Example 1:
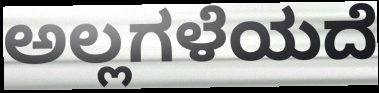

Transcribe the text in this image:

ಅಲ್ಲಗಳೆಯದೆ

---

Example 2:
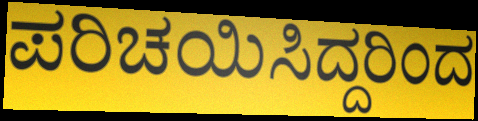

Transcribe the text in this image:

ಪರಿಚಯಿಸಿದ್ದರಿಂದ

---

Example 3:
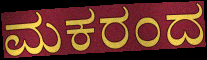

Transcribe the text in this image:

ಮಕರಂದ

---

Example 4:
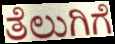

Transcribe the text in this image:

ತೆಲುಗಿಗೆ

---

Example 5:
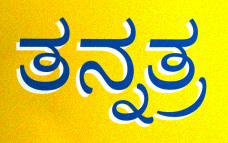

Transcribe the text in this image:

ತನ್ನತ್ರ